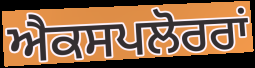
ਐਕਸਪਲੋਰਰਾਂ